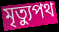
মৃত্যুপথ